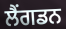
ਲੈਂਗਡਨ